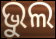
ଭୁଲ